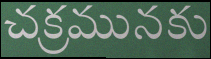
చక్రమునకు